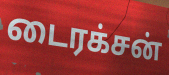
டைரக்சன்